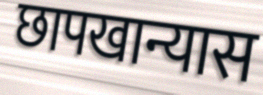
छापखान्यास